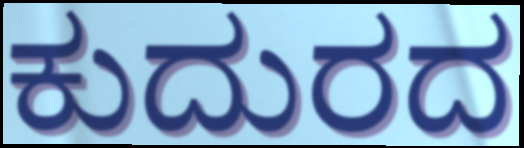
ಕುದುರದ